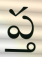
ప్త